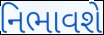
નિભાવશે